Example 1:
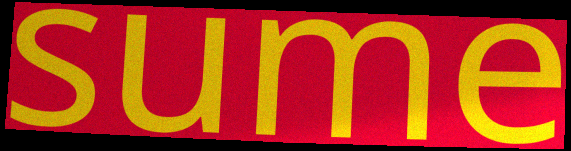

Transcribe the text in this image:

sume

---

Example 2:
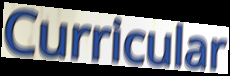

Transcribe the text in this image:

Curricular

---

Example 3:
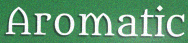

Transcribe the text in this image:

Aromatic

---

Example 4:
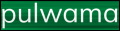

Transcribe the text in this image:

pulwama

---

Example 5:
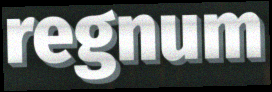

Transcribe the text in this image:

regnum